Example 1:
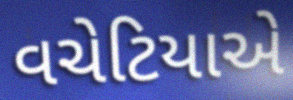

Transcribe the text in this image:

વચેટિયાએ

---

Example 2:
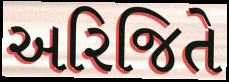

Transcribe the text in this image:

અરિજિતે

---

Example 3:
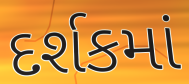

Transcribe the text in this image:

દર્શકમાં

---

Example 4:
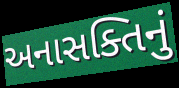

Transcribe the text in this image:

અનાસક્તિનું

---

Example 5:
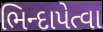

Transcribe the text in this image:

ભિન્દાપેત્વા